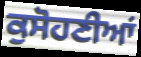
ਕੁਸੋਹਣੀਆਂ